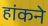
हांकने